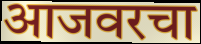
आजवरचा